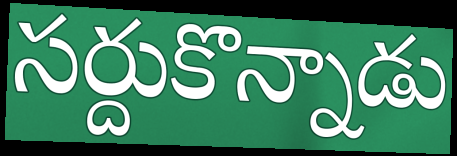
సర్దుకొన్నాడు